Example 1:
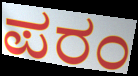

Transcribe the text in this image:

ಪರಂ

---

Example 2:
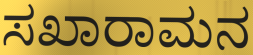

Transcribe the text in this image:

ಸಖಾರಾಮನ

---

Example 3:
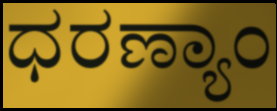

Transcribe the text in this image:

ಧರಣ್ಯಾಂ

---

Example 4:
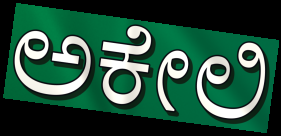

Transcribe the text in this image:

ಅಕೇಲಿ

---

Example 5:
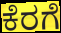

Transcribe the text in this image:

ಕೆರಗೆ